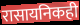
रासायनिकही